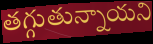
తగ్గుతున్నాయని